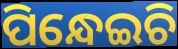
ପିନ୍ଧେଇଚି